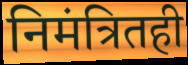
निमंत्रितही